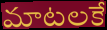
మాటలకే